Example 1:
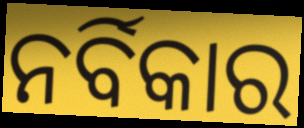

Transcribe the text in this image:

ନର୍ବିକାର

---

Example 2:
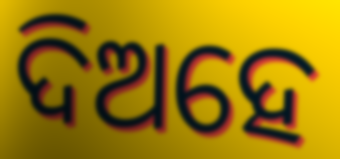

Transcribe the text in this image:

ଦିଅହେ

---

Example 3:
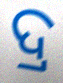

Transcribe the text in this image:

ଦ୍ର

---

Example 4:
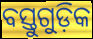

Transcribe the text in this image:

ବସ୍ତୁଗୁଡ଼ିକ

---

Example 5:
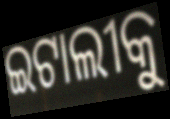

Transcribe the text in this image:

ଇଟାଲୀକୁ